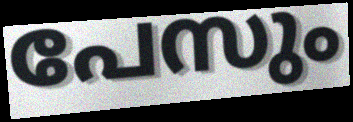
പേസും